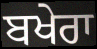
ਬਖੇਰਾ